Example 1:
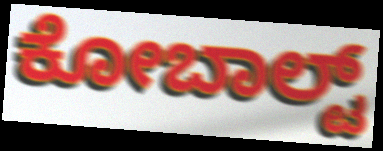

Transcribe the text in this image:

ಕೋಬಾಲ್ಟ್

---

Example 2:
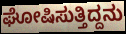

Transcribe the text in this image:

ಘೋಷಿಸುತ್ತಿದ್ದನು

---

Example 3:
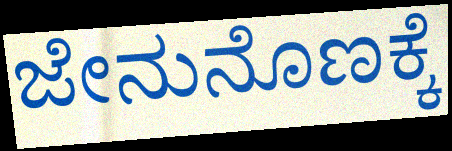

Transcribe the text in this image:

ಜೇನುನೊಣಕ್ಕೆ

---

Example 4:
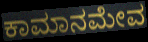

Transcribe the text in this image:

ಕಾಮಾನಮೇವ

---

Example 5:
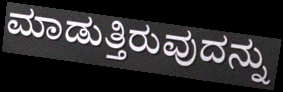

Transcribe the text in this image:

ಮಾಡುತ್ತಿರುವುದನ್ನು